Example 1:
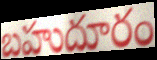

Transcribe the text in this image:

బహుదూరం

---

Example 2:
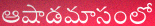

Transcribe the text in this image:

ఆషాడమాసంలో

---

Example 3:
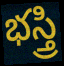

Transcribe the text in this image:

భస్త్రి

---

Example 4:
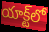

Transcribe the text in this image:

యాక్ట్‌లో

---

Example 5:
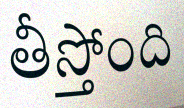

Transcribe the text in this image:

తీస్తోంది